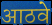
आठवे